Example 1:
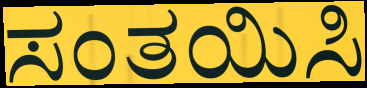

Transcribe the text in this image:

ಸಂತಯಿಸಿ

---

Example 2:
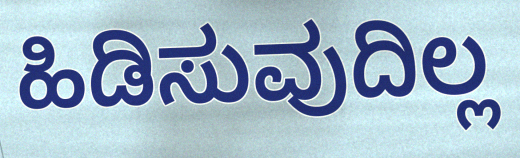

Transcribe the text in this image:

ಹಿಡಿಸುವುದಿಲ್ಲ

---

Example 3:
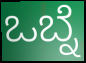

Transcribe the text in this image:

ಒಬ್ನೆ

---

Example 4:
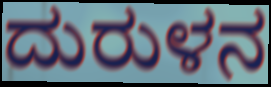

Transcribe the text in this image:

ದುರುಳನ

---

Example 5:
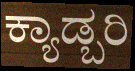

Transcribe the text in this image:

ಕ್ಯಾಡ್ಬರಿ